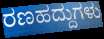
ರಣಹದ್ದುಗಳು